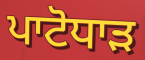
ਪਾਟੋਧਾੜ